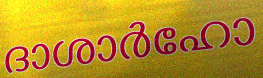
ദാശാർഹോ